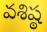
వశిష్ఠ